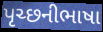
પૃચ્છનીભાષા